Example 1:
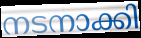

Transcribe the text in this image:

നടനാക്കി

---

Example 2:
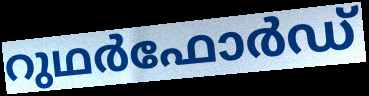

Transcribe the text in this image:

റുഥർഫോർഡ്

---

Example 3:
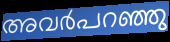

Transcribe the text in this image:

അവർപറഞ്ഞു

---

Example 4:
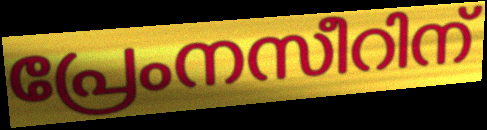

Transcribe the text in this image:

പ്രേംനസീറിന്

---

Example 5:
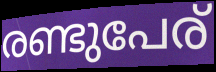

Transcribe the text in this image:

രണ്ടുപേര്